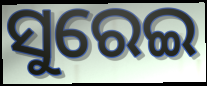
ସୁରେଇ